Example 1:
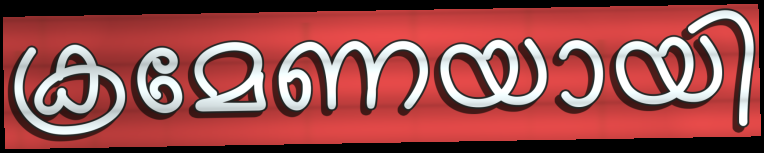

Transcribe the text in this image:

ക്രമേണയായി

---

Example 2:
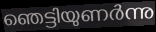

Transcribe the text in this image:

ഞെട്ടിയുണർന്നു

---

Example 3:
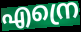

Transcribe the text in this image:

എന്രെ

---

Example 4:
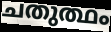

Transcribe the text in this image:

ചതുത്ഥം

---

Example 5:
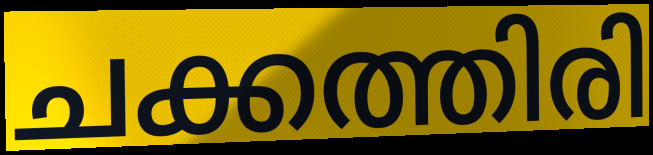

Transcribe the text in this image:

ചക്കത്തിരി